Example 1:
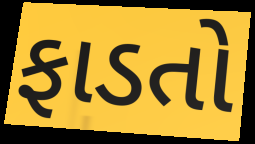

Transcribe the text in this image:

ફાડતો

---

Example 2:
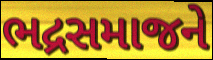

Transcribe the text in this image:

ભદ્રસમાજને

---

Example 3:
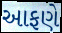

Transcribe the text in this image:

આફણે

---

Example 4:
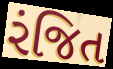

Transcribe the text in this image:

રંજિત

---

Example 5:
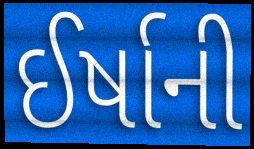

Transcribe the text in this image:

ઈર્ષાની